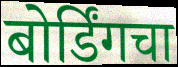
बोर्डिंगचा